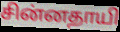
சின்னதாயி